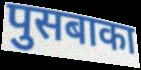
पुसबाका